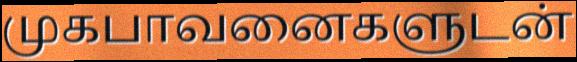
முகபாவனைகளுடன்